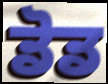
ਡੋਡ